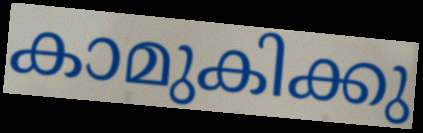
കാമുകിക്കു